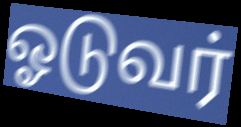
ஓடுவர்